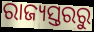
ରାଜ୍ୟସ୍ତରରୁ